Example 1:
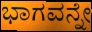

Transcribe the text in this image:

ಭಾಗವನ್ನೇ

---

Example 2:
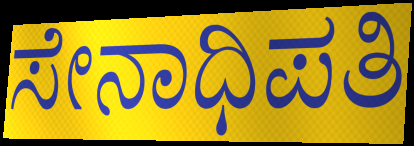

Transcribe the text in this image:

ಸೇನಾಧಿಪತಿ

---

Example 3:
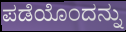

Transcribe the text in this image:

ಪಡೆಯೊಂದನ್ನು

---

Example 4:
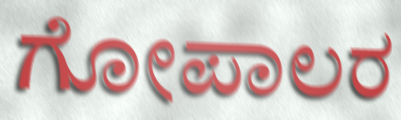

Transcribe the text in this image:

ಗೋಪಾಲರ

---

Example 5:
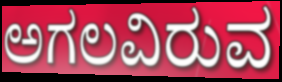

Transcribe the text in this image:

ಅಗಲವಿರುವ